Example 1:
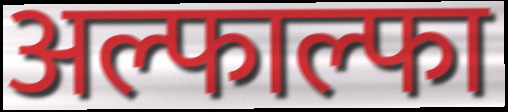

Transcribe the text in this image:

अल्फाल्फा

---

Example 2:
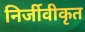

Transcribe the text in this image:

निर्जीवीकृत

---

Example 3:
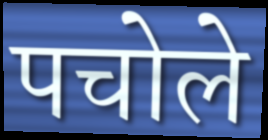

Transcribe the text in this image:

पचोले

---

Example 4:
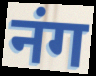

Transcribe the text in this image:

नंग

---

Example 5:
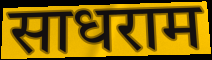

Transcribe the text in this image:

साधराम